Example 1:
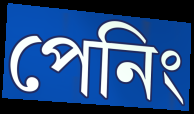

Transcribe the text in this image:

পেনিং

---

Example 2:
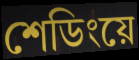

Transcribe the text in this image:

শেডিংয়ে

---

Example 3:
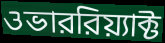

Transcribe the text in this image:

ওভাররিয়্যাক্ট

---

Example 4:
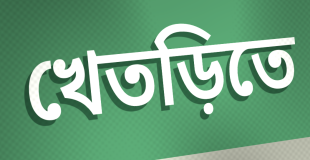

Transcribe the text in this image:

খেতড়িতে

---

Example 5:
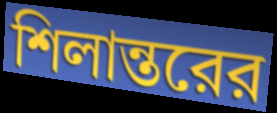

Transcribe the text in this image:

শিলান্তরের